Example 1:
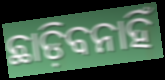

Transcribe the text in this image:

ଛାଡ଼ିବନାହିଁ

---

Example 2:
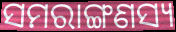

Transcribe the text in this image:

ସମରାଙ୍ଗଣସ୍ୟ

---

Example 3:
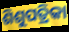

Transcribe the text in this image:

ଶିଶୁପତ୍ରିକା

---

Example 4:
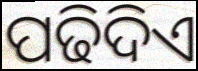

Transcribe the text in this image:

ପଢିଦିଏ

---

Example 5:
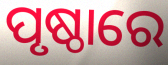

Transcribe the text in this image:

ପୃଷ୍ଠାରେ